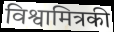
विश्वामित्रकी